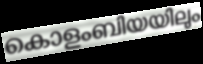
കൊളംബിയയിലും